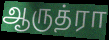
ஆருத்ரா